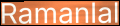
Ramanlal